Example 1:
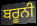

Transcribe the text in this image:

ਬਰੂਨੀ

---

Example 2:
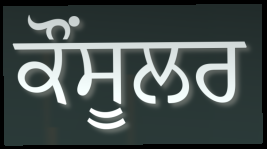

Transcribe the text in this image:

ਕੌਂਸੂਲਰ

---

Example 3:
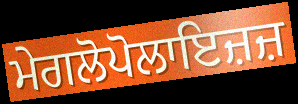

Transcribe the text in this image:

ਮੇਗਲੋਪੋਲਾਇਜ਼ਜ਼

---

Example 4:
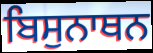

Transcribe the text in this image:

ਬਿਸੁਨਾਥਨ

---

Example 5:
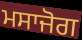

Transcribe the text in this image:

ਮਸਾਜੋਗ